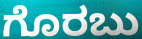
ಗೊರಬು